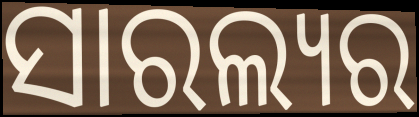
ସାରଲ୍ୟର